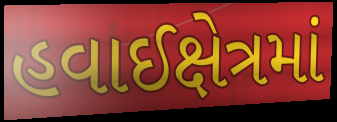
હવાઈક્ષેત્રમાં